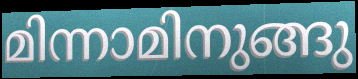
മിന്നാമിനുങ്ങു